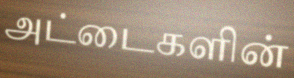
அட்டைகளின்